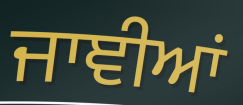
ਜਾਞੀਆਂ